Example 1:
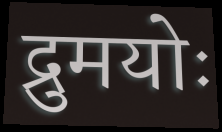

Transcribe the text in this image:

द्रुमयोः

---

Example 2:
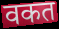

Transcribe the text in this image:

वकत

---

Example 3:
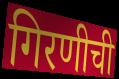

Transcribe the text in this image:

गिरणीची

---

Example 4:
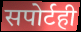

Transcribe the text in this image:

सपोर्टही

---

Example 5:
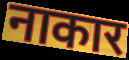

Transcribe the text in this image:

नाकार